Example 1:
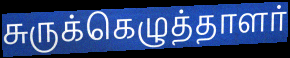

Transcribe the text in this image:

சுருக்கெழுத்தாளர்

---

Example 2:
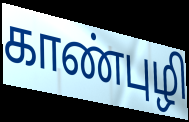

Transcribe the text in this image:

காண்புழி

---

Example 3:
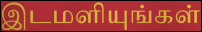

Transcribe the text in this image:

இடமளியுங்கள்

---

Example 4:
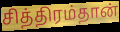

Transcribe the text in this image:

சித்திரம்தான்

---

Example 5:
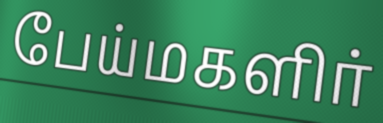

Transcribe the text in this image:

பேய்மகளிர்